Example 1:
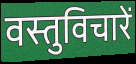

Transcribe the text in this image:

वस्तुविचारें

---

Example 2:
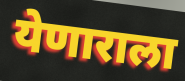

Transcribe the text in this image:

येणाराला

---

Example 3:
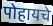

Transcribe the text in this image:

पोहायचे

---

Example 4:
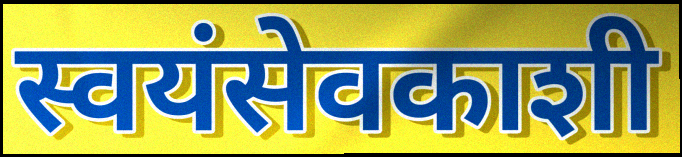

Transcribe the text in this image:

स्वयंसेवकाशी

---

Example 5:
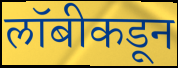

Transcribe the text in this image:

लॉबीकडून